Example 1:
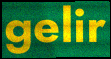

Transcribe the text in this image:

gelir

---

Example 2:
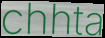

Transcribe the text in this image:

chhta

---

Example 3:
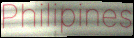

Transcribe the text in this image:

Philipines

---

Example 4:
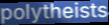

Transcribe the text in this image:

polytheists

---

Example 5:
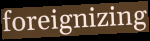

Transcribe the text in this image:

foreignizing